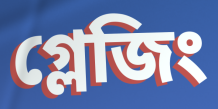
গ্লেজিং